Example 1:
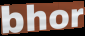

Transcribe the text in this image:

bhor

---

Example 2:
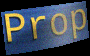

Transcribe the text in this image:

Prop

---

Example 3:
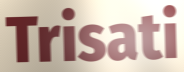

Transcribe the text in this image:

Trisati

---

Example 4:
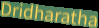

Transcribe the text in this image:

Dridharatha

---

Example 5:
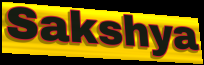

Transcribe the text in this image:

Sakshya